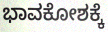
ಭಾವಕೋಶಕ್ಕೆ